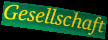
Gesellschaft